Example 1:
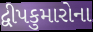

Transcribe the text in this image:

દ્વીપકુમારોના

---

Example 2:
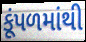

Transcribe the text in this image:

કૂંપળમાંથી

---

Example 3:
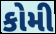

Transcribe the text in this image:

કોમી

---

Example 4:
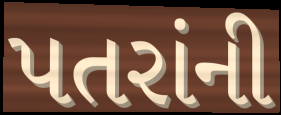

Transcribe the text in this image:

પતરાંની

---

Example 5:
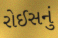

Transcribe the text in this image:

રોઈસનું